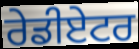
ਰੇਡੀਏਟਰ